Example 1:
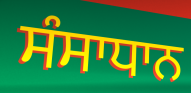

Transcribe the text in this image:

ਸੰਸਾਧਾਨ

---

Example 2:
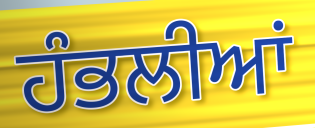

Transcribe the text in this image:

ਹੰਭਲੀਆਂ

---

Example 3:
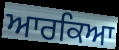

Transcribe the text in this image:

ਆਰਕਿਆ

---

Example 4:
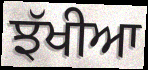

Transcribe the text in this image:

ਝੱਖੀਆ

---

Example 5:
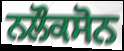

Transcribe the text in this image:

ਨਲੌਕਸੋਨ